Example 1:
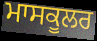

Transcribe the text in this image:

ਮਾਸਕੂਲਰ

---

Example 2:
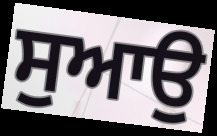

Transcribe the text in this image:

ਸੁਆਉ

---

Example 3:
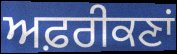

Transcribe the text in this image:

ਅਫ਼ਰੀਕਣਾਂ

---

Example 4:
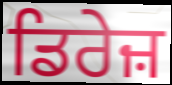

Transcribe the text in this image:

ਡਿਰੇਜ਼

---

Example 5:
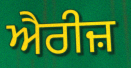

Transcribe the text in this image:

ਐਰੀਜ਼